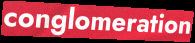
conglomeration